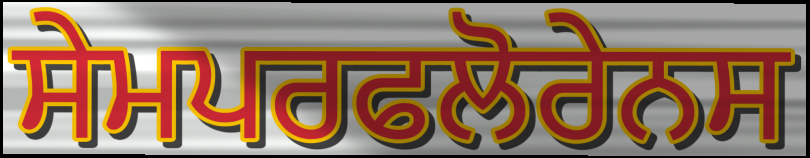
ਸੇਮਪਰਫਲੋਰੇਨਸ